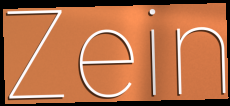
Zein